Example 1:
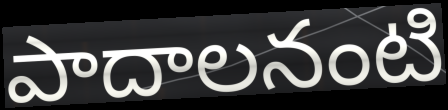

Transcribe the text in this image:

పాదాలనంటి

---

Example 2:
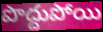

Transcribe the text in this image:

పొద్దుపోయి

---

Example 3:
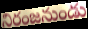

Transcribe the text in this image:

నిరంజనుండు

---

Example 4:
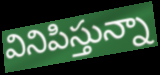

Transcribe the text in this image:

వినిపిస్తున్నా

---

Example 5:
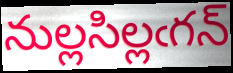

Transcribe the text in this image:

నుల్లసిల్లఁగన్